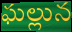
ఘల్లున